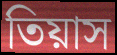
তিয়াস